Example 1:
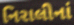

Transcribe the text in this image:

નિરાલીનાં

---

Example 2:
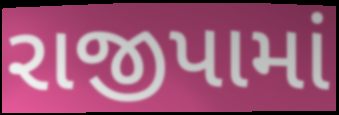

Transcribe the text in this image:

રાજીપામાં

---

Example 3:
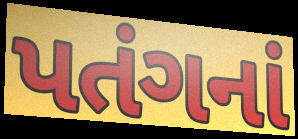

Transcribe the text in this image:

પતંગનાં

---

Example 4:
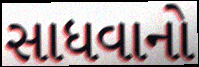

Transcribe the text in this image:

સાધવાનો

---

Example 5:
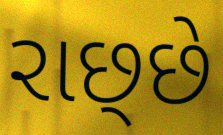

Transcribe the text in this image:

રાછ્છે